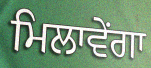
ਮਿਲਾਵੇਂਗਾ